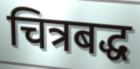
चित्रबद्ध